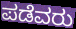
ಪಡೆವರು